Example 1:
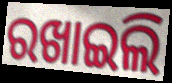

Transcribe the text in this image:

ରଖାଇଲି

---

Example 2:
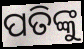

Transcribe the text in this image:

ପତିଙ୍କୁ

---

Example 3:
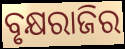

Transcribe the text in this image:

ବୃକ୍ଷରାଜିର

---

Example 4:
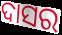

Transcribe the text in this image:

ଦାସର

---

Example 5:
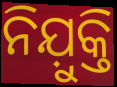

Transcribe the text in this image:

ନିଯ଼ୁକ୍ତି